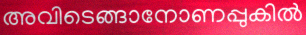
അവിടെങ്ങാനോണപ്പുകിൽ